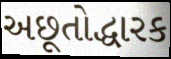
અછૂતોદ્ધારક